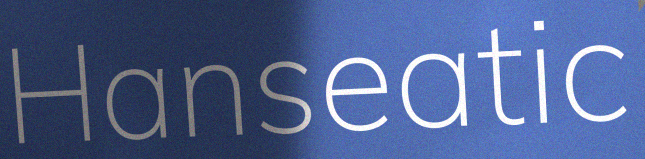
Hanseatic